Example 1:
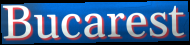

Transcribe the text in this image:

Bucarest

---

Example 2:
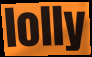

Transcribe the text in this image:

lolly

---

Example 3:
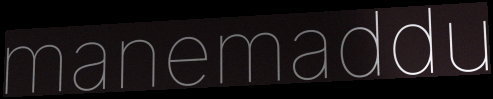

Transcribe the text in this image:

manemaddu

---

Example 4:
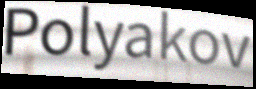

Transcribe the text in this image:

Polyakov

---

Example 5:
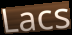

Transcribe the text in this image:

Lacs